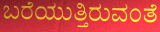
ಬರೆಯುತ್ತಿರುವಂತೆ